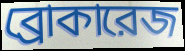
ব্রোকারেজ